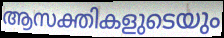
ആസക്തികളുടെയും